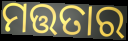
ମତ୍ତତାର